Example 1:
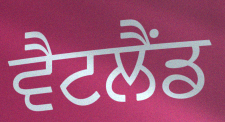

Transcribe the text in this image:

ਵੈਟਲੈਂਡ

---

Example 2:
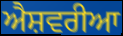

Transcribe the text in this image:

ਐਸ਼ਵਰੀਆ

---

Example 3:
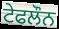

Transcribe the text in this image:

ਟੇਫਲੌਨ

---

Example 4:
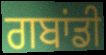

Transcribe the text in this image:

ਗਬਾਂਡੀ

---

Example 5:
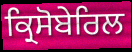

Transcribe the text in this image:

ਕ੍ਰਿਸੋਬੇਰਿਲ